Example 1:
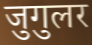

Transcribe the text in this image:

जुगुलर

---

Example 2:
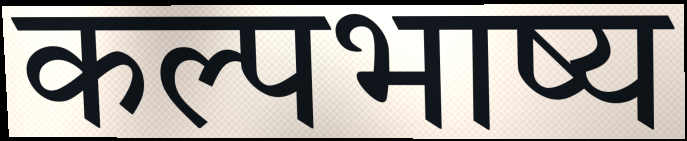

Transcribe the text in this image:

कल्पभाष्य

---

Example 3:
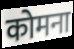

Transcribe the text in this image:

कोमना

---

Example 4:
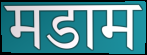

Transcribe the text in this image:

मडाम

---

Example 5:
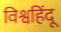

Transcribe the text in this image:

विश्वहिंदू